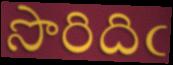
సొరిదిఁ